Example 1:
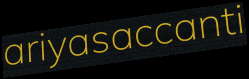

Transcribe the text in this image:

ariyasaccanti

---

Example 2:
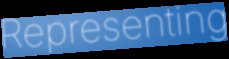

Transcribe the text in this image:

Representing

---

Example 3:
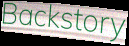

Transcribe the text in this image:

Backstory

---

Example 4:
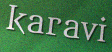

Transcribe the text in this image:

karavi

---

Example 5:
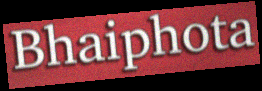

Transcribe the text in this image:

Bhaiphota